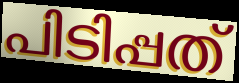
പിടിപ്പത്